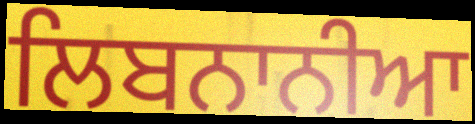
ਲਿਬਨਾਨੀਆ